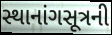
સ્થાનાંગસૂત્રની